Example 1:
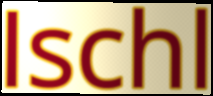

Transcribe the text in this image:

Ischl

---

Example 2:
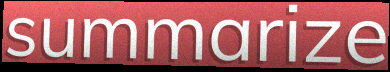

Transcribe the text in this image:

summarize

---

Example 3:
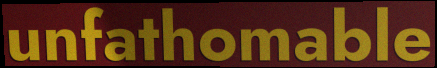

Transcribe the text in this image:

unfathomable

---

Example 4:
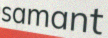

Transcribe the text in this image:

samant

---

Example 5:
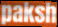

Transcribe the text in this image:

paksh